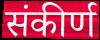
संकीर्ण